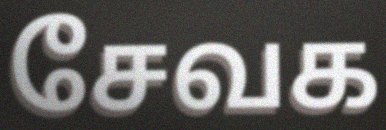
சேவக